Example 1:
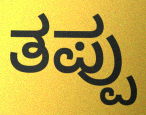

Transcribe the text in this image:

ತಪ್ಪು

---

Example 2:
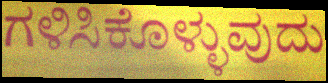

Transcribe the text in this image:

ಗಳಿಸಿಕೊಳ್ಳುವುದು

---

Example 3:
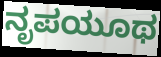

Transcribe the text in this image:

ನೃಪಯೂಥ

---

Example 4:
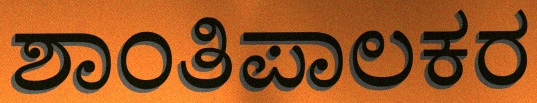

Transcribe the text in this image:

ಶಾಂತಿಪಾಲಕರ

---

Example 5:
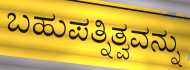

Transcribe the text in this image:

ಬಹುಪತ್ನಿತ್ವವನ್ನು